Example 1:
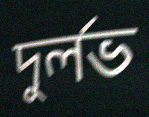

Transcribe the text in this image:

দুর্লভ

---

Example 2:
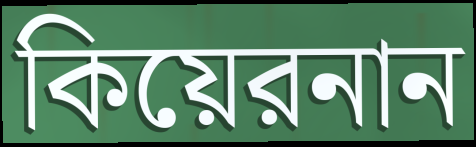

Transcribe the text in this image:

কিয়েরনান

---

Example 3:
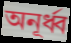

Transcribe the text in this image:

অনূর্ধ্ব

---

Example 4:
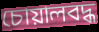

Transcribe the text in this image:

চোয়ালবদ্ধ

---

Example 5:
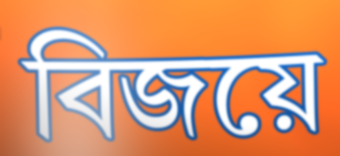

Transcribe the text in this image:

বিজয়ে